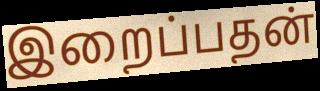
இறைப்பதன்